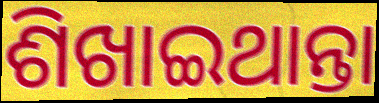
ଶିଖାଇଥାନ୍ତା